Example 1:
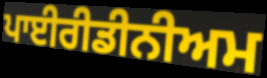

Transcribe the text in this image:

ਪਾਈਰੀਡੀਨੀਅਮ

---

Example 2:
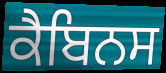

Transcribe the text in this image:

ਕੈਬਿਨਸ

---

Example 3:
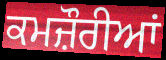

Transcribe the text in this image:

ਕਮਜ਼ੌਰੀਆਂ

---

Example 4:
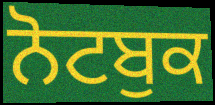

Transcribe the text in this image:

ਨੋਟਬੁਕ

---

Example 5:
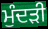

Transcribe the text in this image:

ਮੁੰਦੜੀ